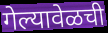
गेल्यावेळची